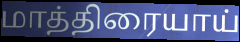
மாத்திரையாய்